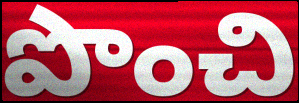
పొంచి